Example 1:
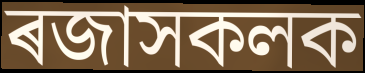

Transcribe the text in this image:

ৰজাসকলক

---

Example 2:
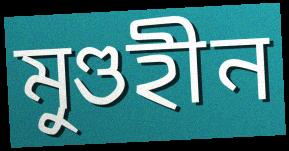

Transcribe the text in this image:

মুণ্ডহীন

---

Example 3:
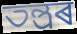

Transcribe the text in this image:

তন্ত্ৰৰ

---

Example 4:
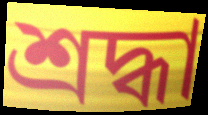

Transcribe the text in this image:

শ্ৰদ্ধা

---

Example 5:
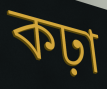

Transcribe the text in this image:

কঢ়া